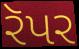
રૅપર